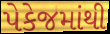
પેકેજમાંથી